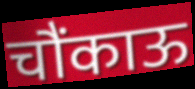
चौंकाऊ